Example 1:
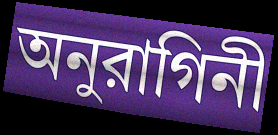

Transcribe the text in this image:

অনুরাগিনী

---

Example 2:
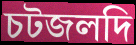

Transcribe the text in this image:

চটজলদি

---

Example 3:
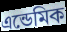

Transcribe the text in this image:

এন্ডেমিক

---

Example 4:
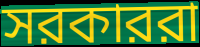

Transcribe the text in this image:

সরকাররা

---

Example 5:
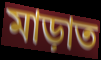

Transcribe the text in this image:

মাড়াত